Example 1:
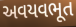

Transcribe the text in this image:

અવયવભૂત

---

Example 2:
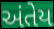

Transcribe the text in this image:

અંતેય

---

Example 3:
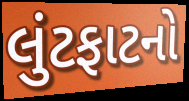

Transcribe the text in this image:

લુંટફાટનો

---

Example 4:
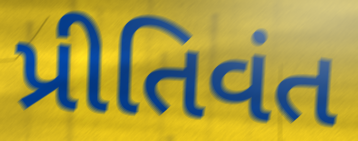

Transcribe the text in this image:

પ્રીતિવંત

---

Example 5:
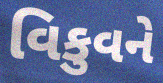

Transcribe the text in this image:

વિકુવને